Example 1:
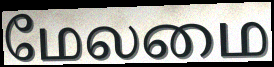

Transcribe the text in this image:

மேலமை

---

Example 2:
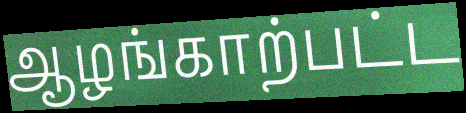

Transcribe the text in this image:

ஆழங்காற்பட்ட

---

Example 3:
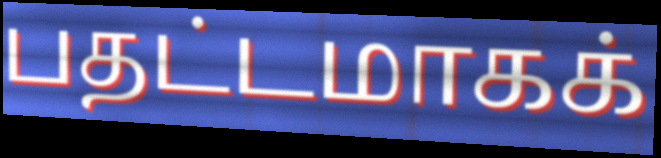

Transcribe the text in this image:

பதட்டமாகக்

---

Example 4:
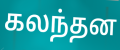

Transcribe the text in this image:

கலந்தன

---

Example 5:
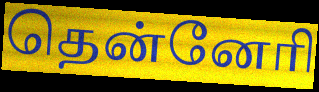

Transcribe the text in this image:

தென்னேரி